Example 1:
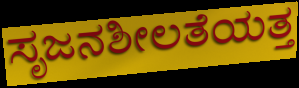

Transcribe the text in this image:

ಸೃಜನಶೀಲತೆಯತ್ತ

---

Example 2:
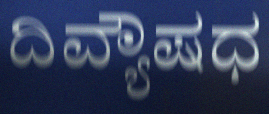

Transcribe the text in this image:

ದಿವ್ಯೌಷಧ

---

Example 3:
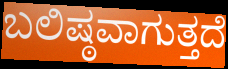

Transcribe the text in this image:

ಬಲಿಷ್ಠವಾಗುತ್ತದೆ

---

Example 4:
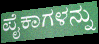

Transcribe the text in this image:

ಪೈಕಾಗಳನ್ನು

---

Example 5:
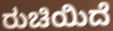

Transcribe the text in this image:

ರುಚಿಯಿದೆ